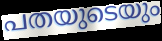
പതയുടെയും